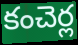
కంచెర్ల